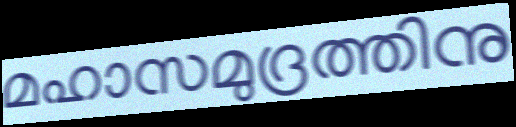
മഹാസമുദ്രത്തിനു